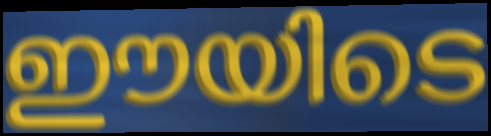
ഈയിടെ